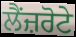
ਲੈਂਜ਼ਰੋਟੇ